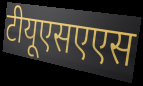
टीयूएसएएस